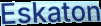
Eskaton